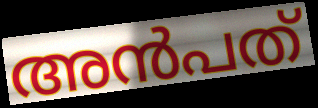
അൻപത്